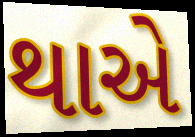
થાએ